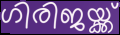
ഗിരിജയ്ക്ക്